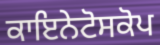
ਕਾਇਨੇਟੋਸਕੋਪ